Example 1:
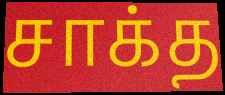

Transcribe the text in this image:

சாக்த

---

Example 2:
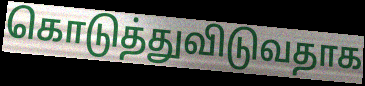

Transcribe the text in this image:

கொடுத்துவிடுவதாக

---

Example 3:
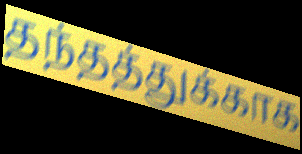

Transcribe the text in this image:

தந்தத்துக்காக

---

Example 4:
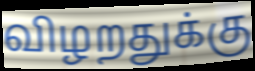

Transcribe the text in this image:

விழறதுக்கு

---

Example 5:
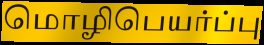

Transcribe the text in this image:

மொழிபெயர்ப்பு